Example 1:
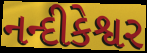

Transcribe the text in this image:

નન્દીકેશ્વર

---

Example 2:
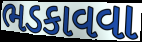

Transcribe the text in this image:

ભડકાવવા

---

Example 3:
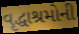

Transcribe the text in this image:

વૃદ્ધાશ્રમોની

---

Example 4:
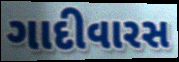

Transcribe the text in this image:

ગાદીવારસ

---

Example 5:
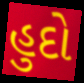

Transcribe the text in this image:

હુદો